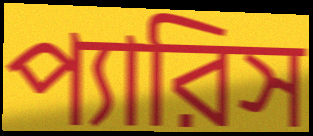
প্যারিস